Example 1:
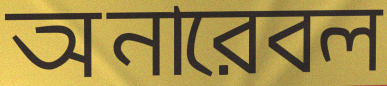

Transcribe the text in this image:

অনারেবল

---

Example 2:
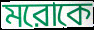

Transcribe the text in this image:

মরোকে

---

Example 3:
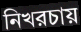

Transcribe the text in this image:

নিখরচায়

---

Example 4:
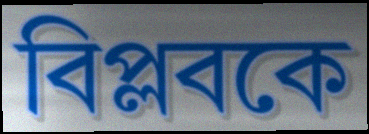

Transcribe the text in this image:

বিপ্লবকে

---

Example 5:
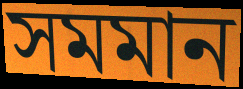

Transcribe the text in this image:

সমমান